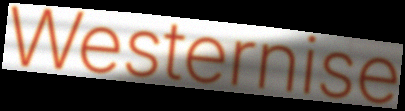
Westernise